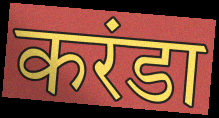
करंडा